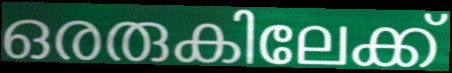
ഒരരുകിലേക്ക്